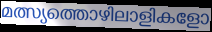
മത്സ്യത്തൊഴിലാളികളോ